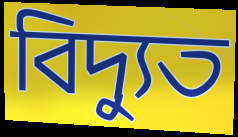
বিদ্যুত